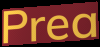
Prea